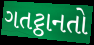
ગતટ્ઠાનતો